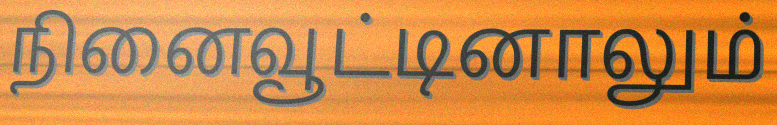
நினைவூட்டினாலும்